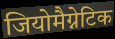
जियोमैग्नेटिक